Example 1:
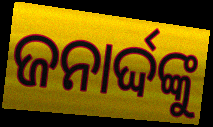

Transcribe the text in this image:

ଜନାର୍ଦ୍ଦଙ୍କୁ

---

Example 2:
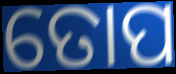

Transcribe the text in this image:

ତୋପ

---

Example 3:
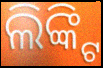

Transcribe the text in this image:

ଲିଙ୍କ୍ଟି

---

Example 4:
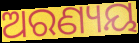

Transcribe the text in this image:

ଅରଣ୍ୟୟ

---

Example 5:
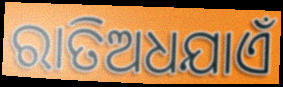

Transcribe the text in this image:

ରାତିଅଧଯାଏଁ